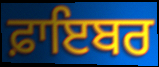
ਫ਼ਾਇਬਰ